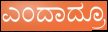
ಎಂದಾದ್ರೂ